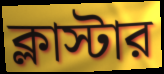
ক্লাস্টার